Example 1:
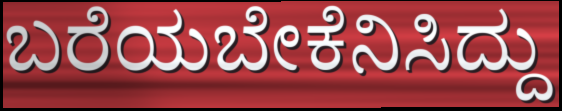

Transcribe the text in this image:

ಬರೆಯಬೇಕೆನಿಸಿದ್ದು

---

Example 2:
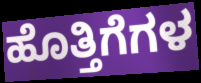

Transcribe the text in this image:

ಹೊತ್ತಿಗೆಗಳ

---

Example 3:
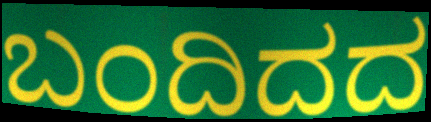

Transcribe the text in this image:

ಬಂದಿದದ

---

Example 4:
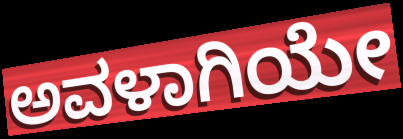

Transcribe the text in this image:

ಅವಳಾಗಿಯೇ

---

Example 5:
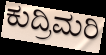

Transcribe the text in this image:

ಕುದ್ರಿಮರಿ